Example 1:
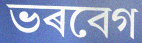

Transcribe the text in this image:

ভৰবেগ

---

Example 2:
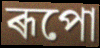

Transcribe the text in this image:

ৰূপো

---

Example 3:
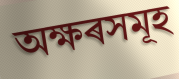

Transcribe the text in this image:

অক্ষৰসমূহ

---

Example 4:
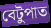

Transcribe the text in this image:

বেটুপাত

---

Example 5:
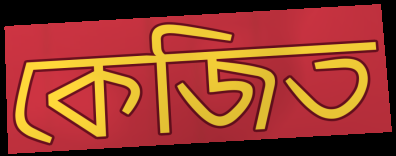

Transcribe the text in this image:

কেজিত